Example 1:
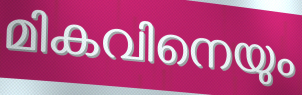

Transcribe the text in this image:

മികവിനെയും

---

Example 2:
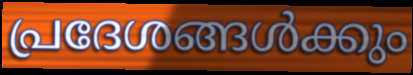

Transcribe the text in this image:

പ്രദേശങ്ങൾക്കും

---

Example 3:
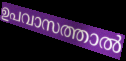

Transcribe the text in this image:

ഉപവാസത്താൽ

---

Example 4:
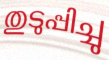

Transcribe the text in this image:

തുടുപ്പിച്ചു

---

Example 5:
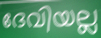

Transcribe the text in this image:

ദേവിയല്ല